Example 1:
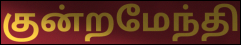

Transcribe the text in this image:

குன்றமேந்தி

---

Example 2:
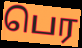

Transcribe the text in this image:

பெர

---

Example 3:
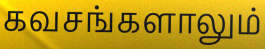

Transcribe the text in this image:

கவசங்களாலும்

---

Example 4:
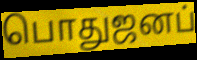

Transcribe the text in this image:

பொதுஜனப்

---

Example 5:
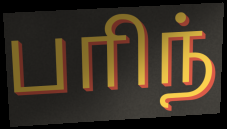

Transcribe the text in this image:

பரிந்